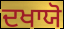
ਦਖਾਯੋ